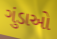
ગુંડાઓ